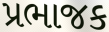
પ્રભાજક